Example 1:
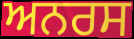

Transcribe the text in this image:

ਅਨਰਸ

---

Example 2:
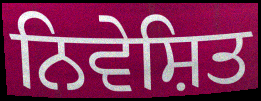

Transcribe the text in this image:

ਨਿਵੇਸ਼ਿਤ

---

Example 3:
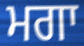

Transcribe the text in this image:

ਮਗਾ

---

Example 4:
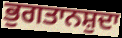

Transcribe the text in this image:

ਭੁਗਤਾਨਸ਼ੁਦਾ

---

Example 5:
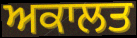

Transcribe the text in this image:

ਅਕਾਲਤ